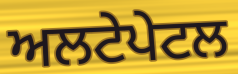
ਅਲਟੇਪੇਟਲ